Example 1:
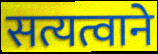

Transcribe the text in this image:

सत्यत्वाने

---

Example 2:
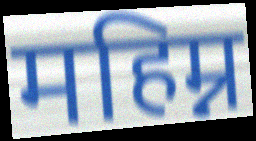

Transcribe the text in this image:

महिम्न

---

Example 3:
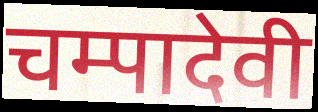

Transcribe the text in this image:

चम्पादेवी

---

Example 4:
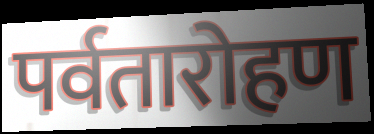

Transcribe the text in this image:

पर्वतारोहण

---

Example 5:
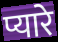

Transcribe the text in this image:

प्यारे